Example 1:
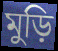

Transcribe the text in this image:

মুড়ি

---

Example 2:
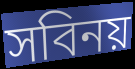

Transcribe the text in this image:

সবিনয়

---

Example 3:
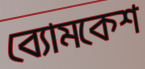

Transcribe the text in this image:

ব্যোমকেশ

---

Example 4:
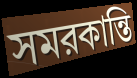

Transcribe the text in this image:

সমরকান্তি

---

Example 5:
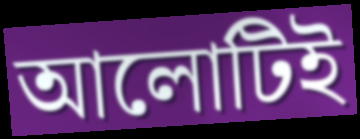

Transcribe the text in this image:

আলোটিই